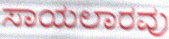
ಸಾಯಲಾರವು